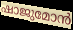
ഷാജുമോൻ